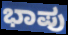
ಭಾಪು